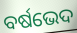
ବର୍ଷଭେଦ